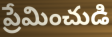
ప్రేమించుడి